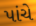
પાંચે